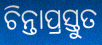
ଚିନ୍ତାପ୍ରସ୍ତୁତ